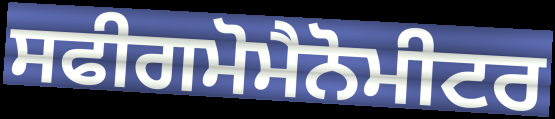
ਸਫੀਗਮੋਮੈਨੋਮੀਟਰ